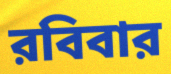
রবিবার